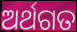
ଅର୍ଥଗତ